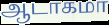
ஆடாகமா